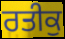
ਰਤੀਕੁ